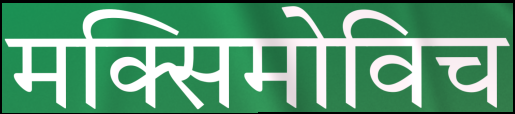
मक्सिमोविच